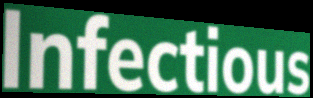
Infectious